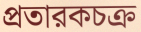
প্রতারকচক্র